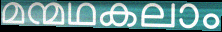
മന്മഥകലാം